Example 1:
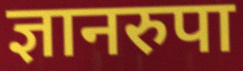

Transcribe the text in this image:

ज्ञानरुपा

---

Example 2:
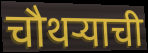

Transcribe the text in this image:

चौथऱ्याची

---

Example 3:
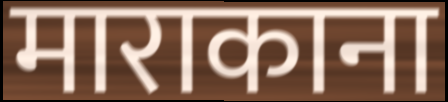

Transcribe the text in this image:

माराकाना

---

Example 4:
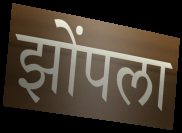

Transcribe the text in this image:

झोंपला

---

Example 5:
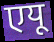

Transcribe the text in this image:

एयू